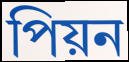
পিয়ন